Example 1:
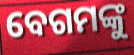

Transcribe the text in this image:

ବେଗମଙ୍କୁ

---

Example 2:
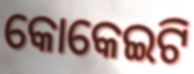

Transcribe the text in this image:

କୋକେଇଟି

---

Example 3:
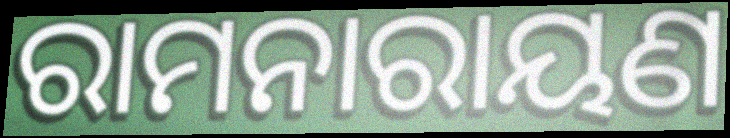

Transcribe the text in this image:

ରାମନାରାୟଣ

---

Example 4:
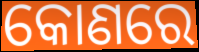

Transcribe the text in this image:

କୋଣରେ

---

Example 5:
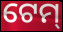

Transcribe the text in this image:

ଟେମ୍